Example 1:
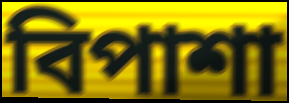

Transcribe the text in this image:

বিপাশা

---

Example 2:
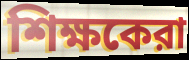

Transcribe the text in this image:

শিক্ষকেরা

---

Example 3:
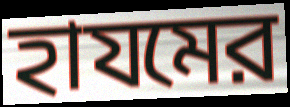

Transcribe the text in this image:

হাযমের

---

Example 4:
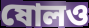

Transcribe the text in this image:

ষোলও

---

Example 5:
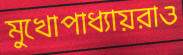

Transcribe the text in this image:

মুখোপাধ্যায়রাও